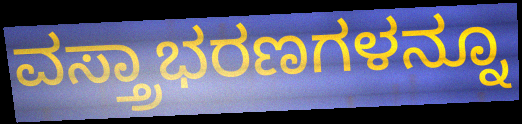
ವಸ್ತ್ರಾಭರಣಗಳನ್ನೂ